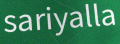
sariyalla